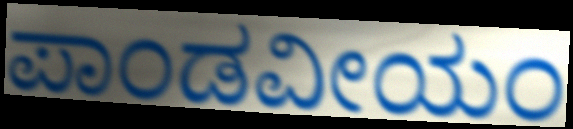
ಪಾಂಡವೀಯಂ